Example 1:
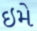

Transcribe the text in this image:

ઇમે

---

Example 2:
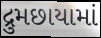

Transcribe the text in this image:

દ્રુમછાયામાં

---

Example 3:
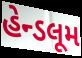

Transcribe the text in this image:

હેન્ડલૂમ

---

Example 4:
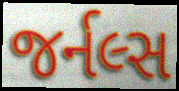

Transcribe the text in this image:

જર્નલ્સ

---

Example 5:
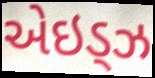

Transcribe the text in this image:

એઇડ્ઝ